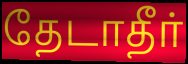
தேடாதீர்